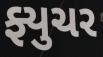
ફ્યુચર